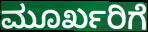
ಮೂರ್ಖರಿಗೆ